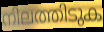
നിലത്തിടുക